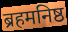
ब्रहमनिष्ठ